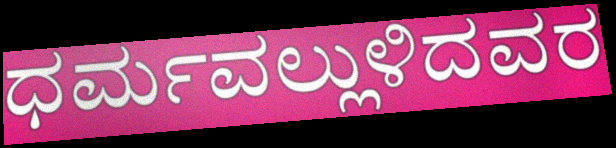
ಧರ್ಮವಲ್ಲುಳಿದವರ